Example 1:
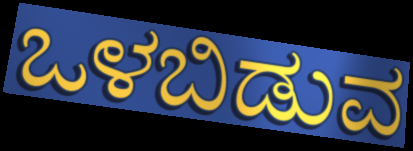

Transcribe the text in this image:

ಒಳಬಿಡುವ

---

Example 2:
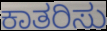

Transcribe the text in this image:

ಕಾತರಿಸು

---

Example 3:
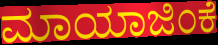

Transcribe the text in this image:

ಮಾಯಾಜಿಂಕೆ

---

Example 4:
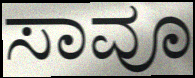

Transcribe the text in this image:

ಸಾವೂ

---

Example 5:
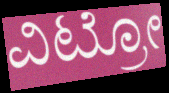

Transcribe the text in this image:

ವಿಟ್ರೋ